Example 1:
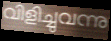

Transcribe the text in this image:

വിളിച്ചുവന്നു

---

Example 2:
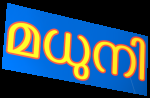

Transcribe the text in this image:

മധുനി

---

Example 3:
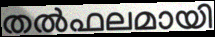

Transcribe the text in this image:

തൽഫലമായി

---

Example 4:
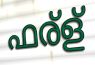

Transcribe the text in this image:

ഫര്ള്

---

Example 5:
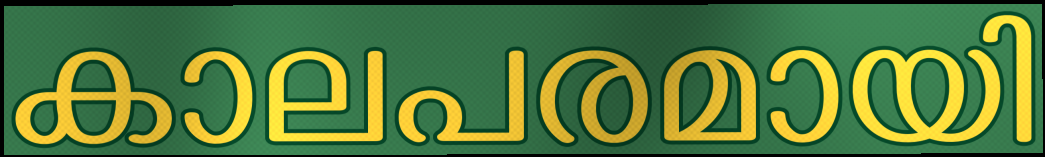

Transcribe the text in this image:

കാലപരമായി